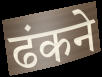
ढंकने